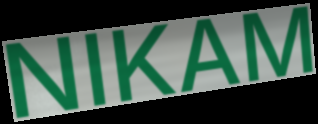
NIKAM